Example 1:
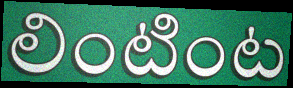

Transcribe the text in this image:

లింటింట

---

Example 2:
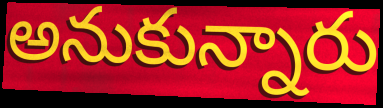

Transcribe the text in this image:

అనుకున్నారు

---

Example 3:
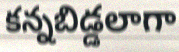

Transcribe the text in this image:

కన్నబిడ్డలాగా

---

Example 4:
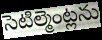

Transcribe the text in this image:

సెటిల్మెంట్లను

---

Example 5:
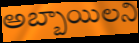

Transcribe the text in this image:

అబ్బాయిలని